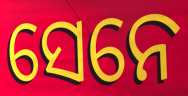
ସେନେ